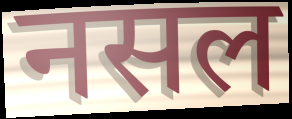
नसल